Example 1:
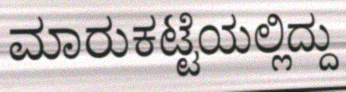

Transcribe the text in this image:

ಮಾರುಕಟ್ಟೆಯಲ್ಲಿದ್ದು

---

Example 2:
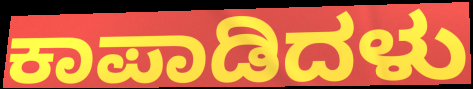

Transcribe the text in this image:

ಕಾಪಾಡಿದಳು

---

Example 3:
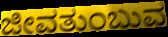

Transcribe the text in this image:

ಜೀವತುಂಬುವ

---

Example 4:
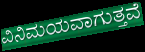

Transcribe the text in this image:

ವಿನಿಮಯವಾಗುತ್ತವೆ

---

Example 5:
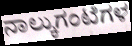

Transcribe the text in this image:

ನಾಲ್ಕುಗಂಟೆಗಳ